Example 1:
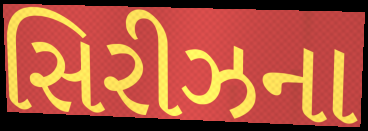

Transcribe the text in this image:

સિરીઝના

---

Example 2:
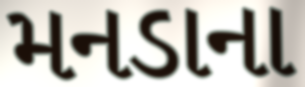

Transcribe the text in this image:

મનડાના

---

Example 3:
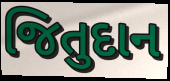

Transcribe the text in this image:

જિતુદાન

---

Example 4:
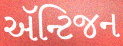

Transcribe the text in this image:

ઍન્ટિજન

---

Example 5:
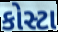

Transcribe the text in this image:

કોસ્ટા